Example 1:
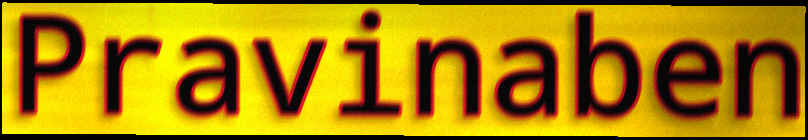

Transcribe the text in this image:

Pravinaben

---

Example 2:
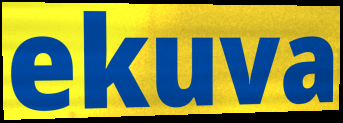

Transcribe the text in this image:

ekuva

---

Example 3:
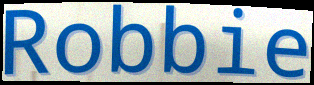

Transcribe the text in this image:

Robbie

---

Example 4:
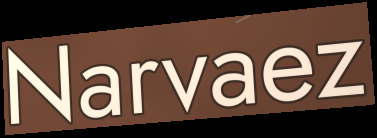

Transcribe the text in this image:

Narvaez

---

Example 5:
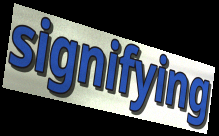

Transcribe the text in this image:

signifying